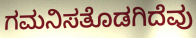
ಗಮನಿಸತೊಡಗಿದೆವು